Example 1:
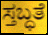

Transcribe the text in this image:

ಸ್ತಬ್ಧತೆ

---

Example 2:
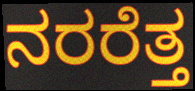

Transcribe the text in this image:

ನರರೆತ್ತ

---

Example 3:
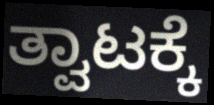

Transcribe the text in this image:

ತ್ವಾಟಕ್ಕೆ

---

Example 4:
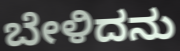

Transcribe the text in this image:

ಬೇಳಿದನು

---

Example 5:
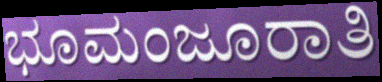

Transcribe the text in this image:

ಭೂಮಂಜೂರಾತಿ